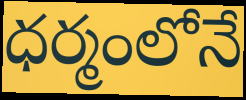
ధర్మంలోనే